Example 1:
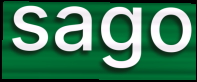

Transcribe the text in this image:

sago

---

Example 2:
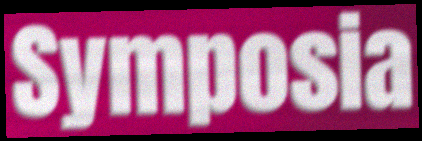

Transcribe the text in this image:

Symposia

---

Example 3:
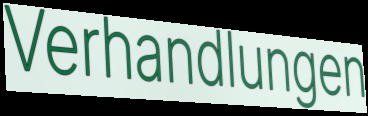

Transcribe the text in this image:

Verhandlungen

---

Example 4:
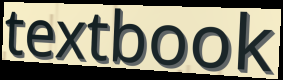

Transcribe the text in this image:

textbook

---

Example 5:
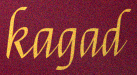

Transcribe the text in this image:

kagad